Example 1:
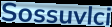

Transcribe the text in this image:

Sossuvlci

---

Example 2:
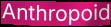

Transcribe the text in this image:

Anthropoid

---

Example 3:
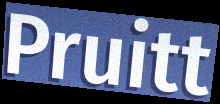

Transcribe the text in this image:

Pruitt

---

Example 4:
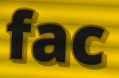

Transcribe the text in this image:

fac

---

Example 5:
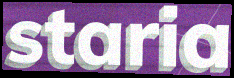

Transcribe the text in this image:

staria